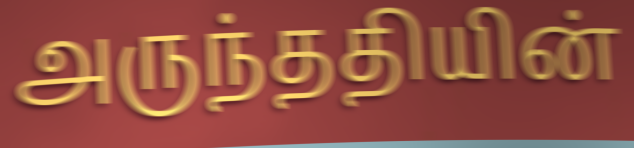
அருந்ததியின்